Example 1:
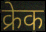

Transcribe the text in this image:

क्रेक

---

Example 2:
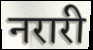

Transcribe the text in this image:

नरारी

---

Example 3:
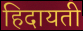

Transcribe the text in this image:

हिदायती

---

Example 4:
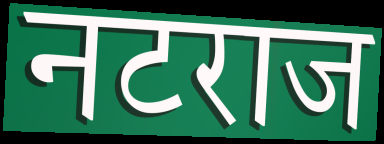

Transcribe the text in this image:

नटराज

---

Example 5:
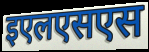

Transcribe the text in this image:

इएलएसएस